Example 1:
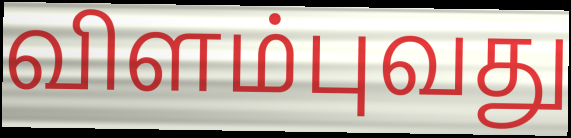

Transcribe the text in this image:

விளம்புவது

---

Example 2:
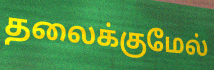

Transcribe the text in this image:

தலைக்குமேல்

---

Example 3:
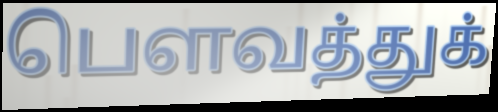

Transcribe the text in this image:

பௌவத்துக்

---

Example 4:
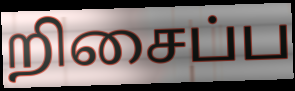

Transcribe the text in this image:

றிசைப்ப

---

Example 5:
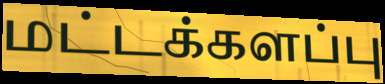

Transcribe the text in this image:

மட்டக்களப்பு